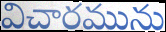
విచారమును